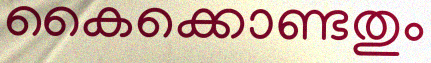
കൈക്കൊണ്ടതും